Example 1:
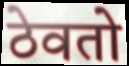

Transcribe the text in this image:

ठेवतो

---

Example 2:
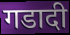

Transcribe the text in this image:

गडादी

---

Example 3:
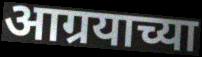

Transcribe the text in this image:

आग्रयाच्या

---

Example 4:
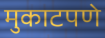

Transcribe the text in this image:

मुकाटपणे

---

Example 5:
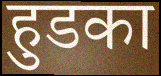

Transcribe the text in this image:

हुडका